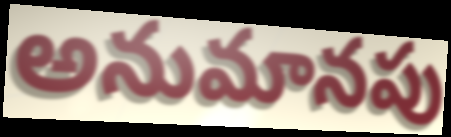
అనుమానపు